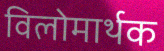
विलोमार्थक